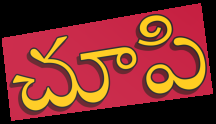
చూపి